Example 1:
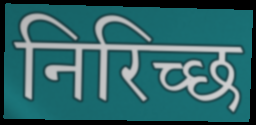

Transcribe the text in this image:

निरिच्छ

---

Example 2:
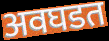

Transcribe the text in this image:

अवघडत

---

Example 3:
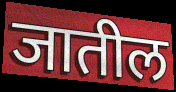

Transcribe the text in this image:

जातील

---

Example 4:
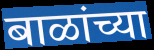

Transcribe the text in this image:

बाळांच्या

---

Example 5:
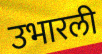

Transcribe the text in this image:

उभारली